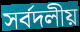
সর্বদলীয়